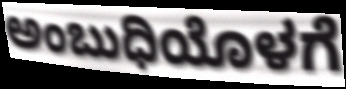
ಅಂಬುಧಿಯೊಳಗೆ